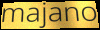
majano